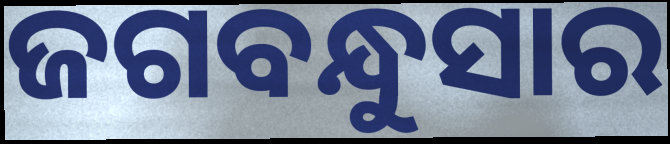
ଜଗବନ୍ଧୁସାର